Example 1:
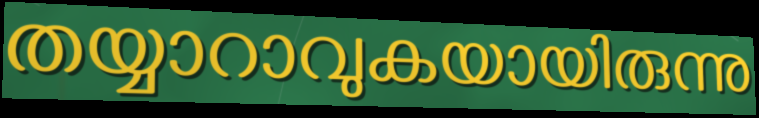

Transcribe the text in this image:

തയ്യാറാവുകയായിരുന്നു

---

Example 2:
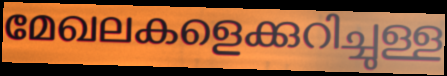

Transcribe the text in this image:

മേഖലകളെക്കുറിച്ചുള്ള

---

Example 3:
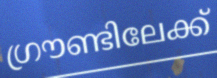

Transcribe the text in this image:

ഗ്രൗണ്ടിലേക്ക്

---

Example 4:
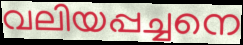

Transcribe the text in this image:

വലിയപ്പച്ചനെ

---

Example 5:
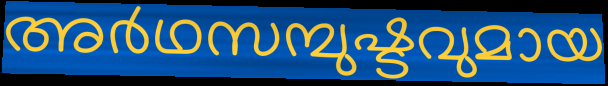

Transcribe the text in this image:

അർഥസമ്പുഷ്ടവുമായ